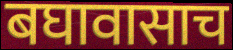
बघावासाच